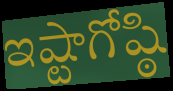
ఇష్టాగోష్ఠి